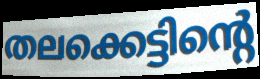
തലക്കെട്ടിന്റെ